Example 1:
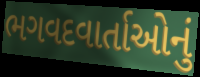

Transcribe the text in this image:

ભગવદવાર્તાઓનું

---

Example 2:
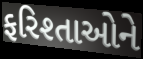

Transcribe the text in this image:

ફરિશ્તાઓને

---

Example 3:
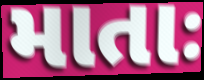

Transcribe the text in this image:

માતાઃ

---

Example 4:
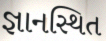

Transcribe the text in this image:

જ્ઞાનસ્થિત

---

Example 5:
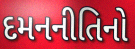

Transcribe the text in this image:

દમનનીતિનો